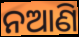
ନଆଣି